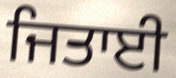
ਜਿਤਾਈ